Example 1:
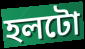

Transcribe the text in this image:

হলটো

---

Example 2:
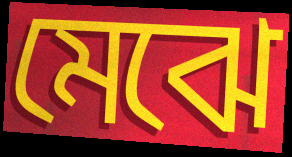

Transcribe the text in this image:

মেঝে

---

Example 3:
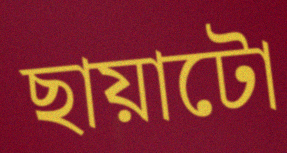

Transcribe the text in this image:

ছায়াটো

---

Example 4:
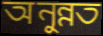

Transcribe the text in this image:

অনুন্নত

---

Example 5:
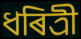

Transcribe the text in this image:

ধৰিত্ৰী